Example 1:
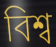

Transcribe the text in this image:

বিশ্ব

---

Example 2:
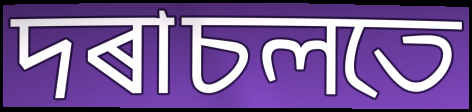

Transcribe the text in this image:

দৰাচলতে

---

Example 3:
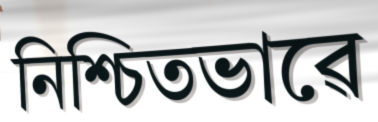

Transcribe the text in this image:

নিশ্চিতভাৱে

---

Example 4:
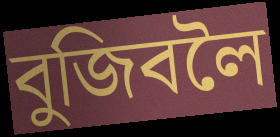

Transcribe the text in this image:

বুজিবলৈ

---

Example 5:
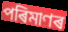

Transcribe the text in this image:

পৰিমাণৰ